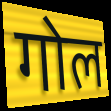
गोल